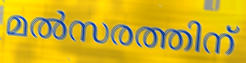
മൽസരത്തിന്